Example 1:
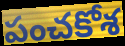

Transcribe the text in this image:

పంచకోశ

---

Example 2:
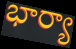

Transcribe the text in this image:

భార్యా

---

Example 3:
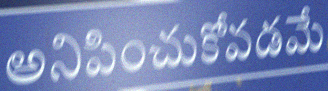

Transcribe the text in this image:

అనిపించుకోవడమే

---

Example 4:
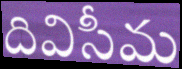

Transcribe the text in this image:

దివిసీమ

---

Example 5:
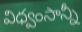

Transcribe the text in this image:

విధ్వంసాన్నీ